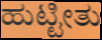
ಹುಟ್ಟೀತು